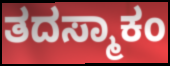
ತದಸ್ಮಾಕಂ